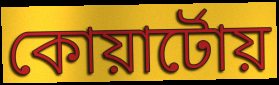
কোয়ার্টোয়